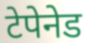
टेपेनेड